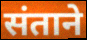
संताने